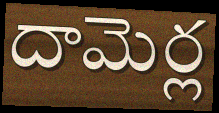
దామెర్ల